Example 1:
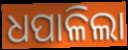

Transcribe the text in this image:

ଧପାଳିଲା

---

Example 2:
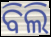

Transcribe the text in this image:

ବିଲି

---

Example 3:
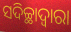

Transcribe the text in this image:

ସଦିଚ୍ଛାଦ୍ୱାରା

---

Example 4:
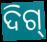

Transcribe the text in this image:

ଦିଗ୍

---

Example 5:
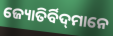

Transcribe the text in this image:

ଜ୍ୟୋତିର୍ବିଦ୍‌ମାନେ